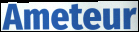
Ameteur